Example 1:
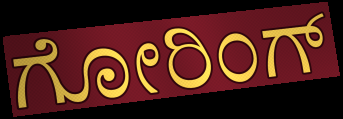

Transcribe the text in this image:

ಗೋರಿಂಗ್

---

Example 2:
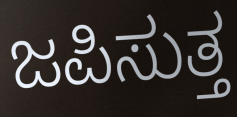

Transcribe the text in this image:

ಜಪಿಸುತ್ತ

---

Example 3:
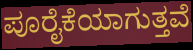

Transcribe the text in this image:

ಪೂರೈಕೆಯಾಗುತ್ತವೆ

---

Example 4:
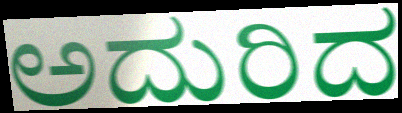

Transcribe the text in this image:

ಅದುರಿದ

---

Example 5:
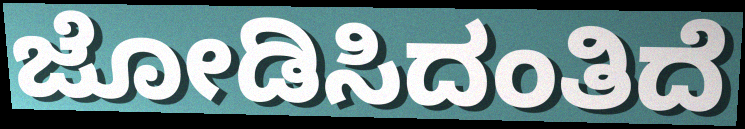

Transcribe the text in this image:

ಜೋಡಿಸಿದಂತಿದೆ